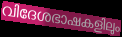
വിദേശഭാഷകളിലും